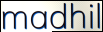
madhil